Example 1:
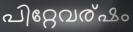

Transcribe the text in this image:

പിറ്റേവര്ഷം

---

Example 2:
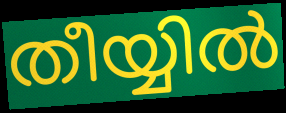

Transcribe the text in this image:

തീയ്യിൽ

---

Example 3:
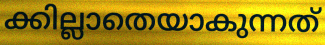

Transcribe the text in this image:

ക്കില്ലാതെയാകുന്നത്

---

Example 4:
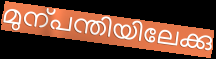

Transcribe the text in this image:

മുന്പന്തിയിലേക്കു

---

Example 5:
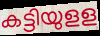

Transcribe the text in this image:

കട്ടിയുളള